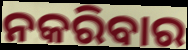
ନକରିବାର